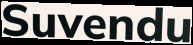
Suvendu